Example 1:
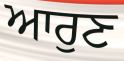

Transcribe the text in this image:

ਆਰੁਣ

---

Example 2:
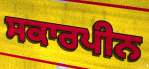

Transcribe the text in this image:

ਸਕਾਰਪੀਨ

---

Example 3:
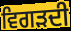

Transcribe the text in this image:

ਵਿਗੜਦੀ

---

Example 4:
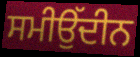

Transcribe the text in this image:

ਸਮੀਉੱਦੀਨ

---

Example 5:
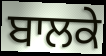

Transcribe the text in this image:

ਬਾਲਕੇ